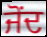
ਜੋਂਦ